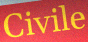
Civile